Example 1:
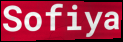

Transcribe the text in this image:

Sofiya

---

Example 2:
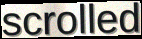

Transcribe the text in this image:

scrolled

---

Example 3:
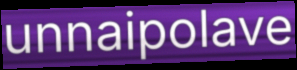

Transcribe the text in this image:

unnaipolave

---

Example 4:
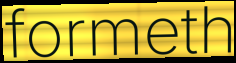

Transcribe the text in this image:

formeth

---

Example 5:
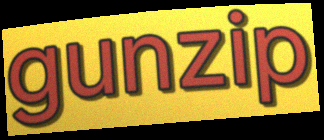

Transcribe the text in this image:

gunzip